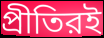
প্রীতিরই